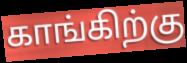
காங்கிற்கு